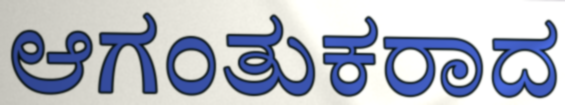
ಆಗಂತುಕರಾದ